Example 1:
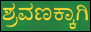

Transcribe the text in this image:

ಶ್ರವಣಕ್ಕಾಗಿ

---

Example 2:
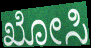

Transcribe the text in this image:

ಖೋಸಿ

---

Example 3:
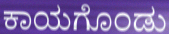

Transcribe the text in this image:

ಕಾಯಗೊಂಡು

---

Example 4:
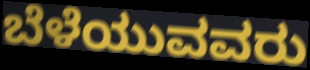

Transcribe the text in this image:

ಬೆಳೆಯುವವರು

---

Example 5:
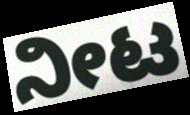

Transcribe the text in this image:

ನೀಟ